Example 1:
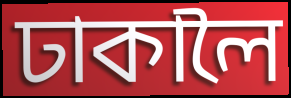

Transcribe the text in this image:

ঢাকালৈ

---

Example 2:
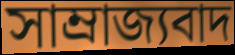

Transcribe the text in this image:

সাম্ৰাজ্যবাদ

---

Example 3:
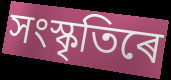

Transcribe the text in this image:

সংস্কৃতিৰে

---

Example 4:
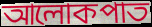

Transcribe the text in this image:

আলোকপাত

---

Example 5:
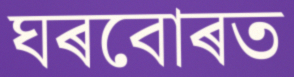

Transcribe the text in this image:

ঘৰবোৰত